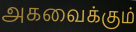
அகவைக்கும்